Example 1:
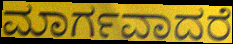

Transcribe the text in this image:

ಮಾರ್ಗವಾದರೆ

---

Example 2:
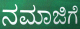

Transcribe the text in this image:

ನಮಾಜಿಗೆ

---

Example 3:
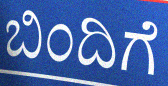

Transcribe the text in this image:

ಬಿಂದಿಗೆ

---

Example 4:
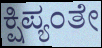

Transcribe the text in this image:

ಕ್ಷಿಪ್ಯಂತೇ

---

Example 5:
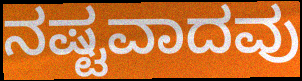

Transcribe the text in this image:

ನಷ್ಟವಾದವು